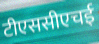
टीएससीएचई